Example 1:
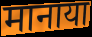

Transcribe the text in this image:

मानाया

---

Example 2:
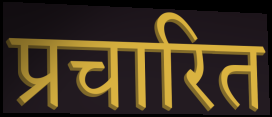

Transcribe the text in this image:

प्रचारित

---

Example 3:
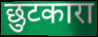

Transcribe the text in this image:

छुटकारा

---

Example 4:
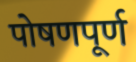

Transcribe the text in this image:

पोषणपूर्ण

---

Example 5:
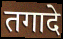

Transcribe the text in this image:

तगादे